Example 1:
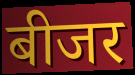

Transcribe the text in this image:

बीजर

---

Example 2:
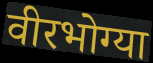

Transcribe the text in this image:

वीरभोग्या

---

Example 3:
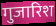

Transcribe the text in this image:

गुजारिश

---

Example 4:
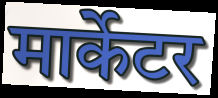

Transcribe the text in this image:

मार्केटर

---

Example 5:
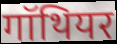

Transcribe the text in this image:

गॉथियर